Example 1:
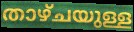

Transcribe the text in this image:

താഴ്ചയുള്ള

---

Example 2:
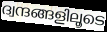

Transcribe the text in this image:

ദ്വന്ദങ്ങളിലൂടെ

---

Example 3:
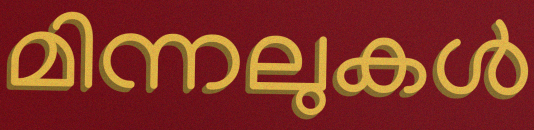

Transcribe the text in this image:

മിന്നലുകൾ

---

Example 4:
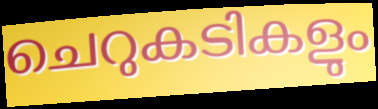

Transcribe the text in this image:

ചെറുകടികളും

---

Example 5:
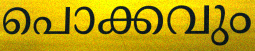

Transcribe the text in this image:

പൊക്കവും